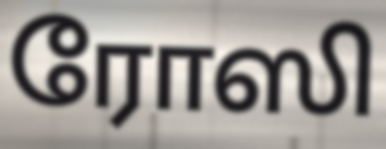
ரோஸி